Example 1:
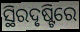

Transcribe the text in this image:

ସ୍ଥିରଦୃଷ୍ଟିରେ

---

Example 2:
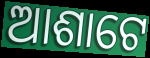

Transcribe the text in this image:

ଆଶାଟେ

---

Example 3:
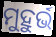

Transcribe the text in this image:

ମୁହୁର୍ଭ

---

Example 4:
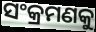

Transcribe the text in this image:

ସଂକ୍ରମଣକୁ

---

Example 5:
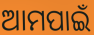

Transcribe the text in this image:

ଆମପାଇଁ